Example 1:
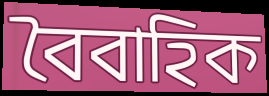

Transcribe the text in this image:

বৈবাহিক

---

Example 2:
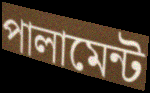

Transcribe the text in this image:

পালামেন্ট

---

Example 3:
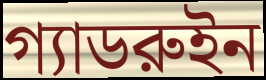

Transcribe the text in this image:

গ্যাডরুইন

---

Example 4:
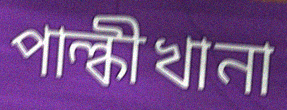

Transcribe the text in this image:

পাল্কীখানা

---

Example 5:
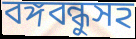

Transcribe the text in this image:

বঙ্গবন্ধুসহ